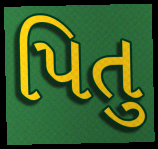
પિતુ